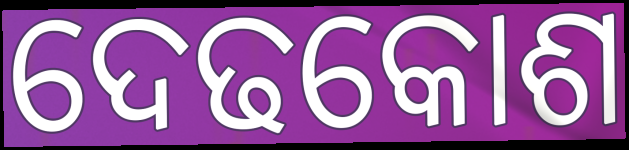
ଦେଢକୋଶ